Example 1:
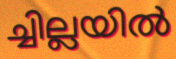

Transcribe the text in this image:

ച്ചില്ലയിൽ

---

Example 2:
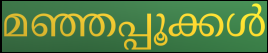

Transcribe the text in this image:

മഞ്ഞപ്പൂക്കൾ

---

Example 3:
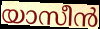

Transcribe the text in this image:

യാസീൻ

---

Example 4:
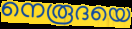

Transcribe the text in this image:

നെരൂദയെ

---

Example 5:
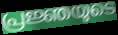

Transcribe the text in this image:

പ്രജ്ഞയുടെ